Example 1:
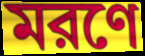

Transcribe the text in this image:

মরণে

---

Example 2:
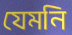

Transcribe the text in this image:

যেমনি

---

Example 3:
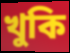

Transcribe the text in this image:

খুকি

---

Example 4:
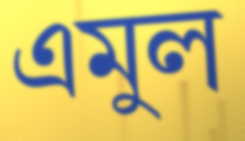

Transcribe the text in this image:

এমুল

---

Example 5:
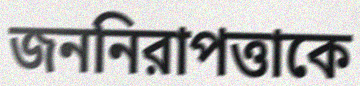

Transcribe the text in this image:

জননিরাপত্তাকে